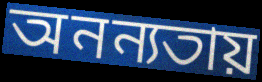
অনন্যতায়